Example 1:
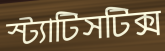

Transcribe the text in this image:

স্ট্যাটিসটিক্স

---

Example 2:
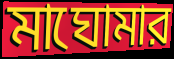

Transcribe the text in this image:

মাঘোমার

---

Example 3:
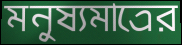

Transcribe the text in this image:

মনুষ্যমাত্রের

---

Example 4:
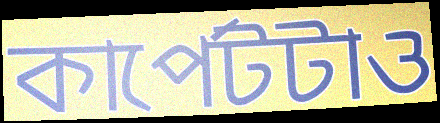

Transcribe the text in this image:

কার্পেটটাও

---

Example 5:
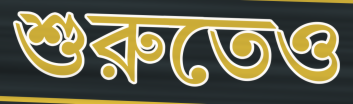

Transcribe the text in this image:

শুরুতেও